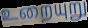
உறையுறு